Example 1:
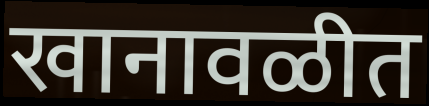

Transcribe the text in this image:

खानावळीत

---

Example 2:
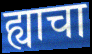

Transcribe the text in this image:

ह्याचा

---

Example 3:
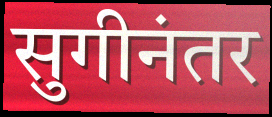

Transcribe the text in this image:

सुगीनंतर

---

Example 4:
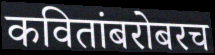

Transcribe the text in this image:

कवितांबरोबरच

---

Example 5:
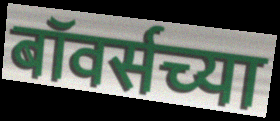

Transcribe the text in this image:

बॉवर्सच्या